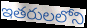
ఇతరులలోని